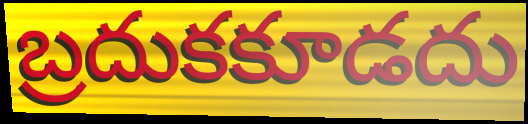
బ్రదుకకూడదు